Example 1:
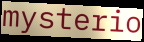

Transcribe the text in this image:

mysterio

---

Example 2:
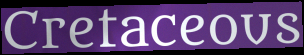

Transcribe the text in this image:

Cretaceous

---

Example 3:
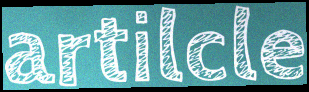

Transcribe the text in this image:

artilcle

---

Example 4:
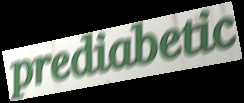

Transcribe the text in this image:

prediabetic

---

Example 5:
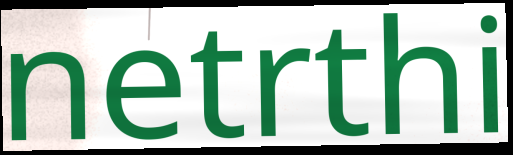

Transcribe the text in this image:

netrthi